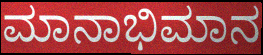
ಮಾನಾಭಿಮಾನ